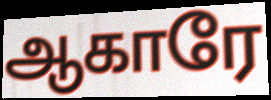
ஆகாரே